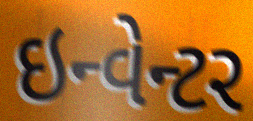
ઇન્વેન્ટર